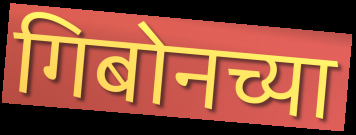
गिबोनच्या